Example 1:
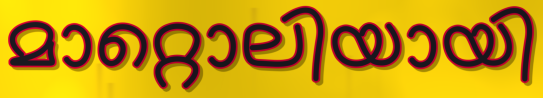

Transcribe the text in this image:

മാറ്റൊലിയായി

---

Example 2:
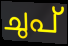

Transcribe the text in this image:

ചുപ്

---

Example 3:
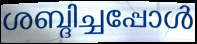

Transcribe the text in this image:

ശബ്ദിച്ചപ്പോൾ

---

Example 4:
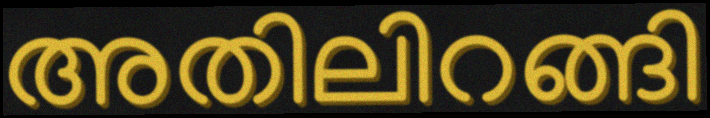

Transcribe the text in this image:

അതിലിറങ്ങി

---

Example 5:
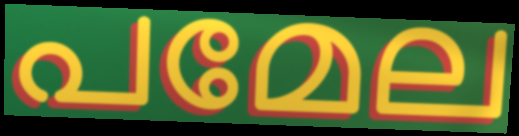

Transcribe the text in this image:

പമേല